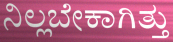
ನಿಲ್ಲಬೇಕಾಗಿತ್ತು